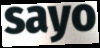
sayo